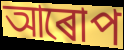
আৰোপ